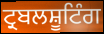
ਟ੍ਰਬਲਸ਼ੂਟਿੰਗ